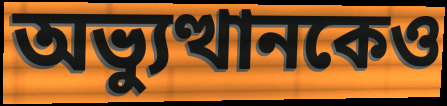
অভ্যুত্থানকেও